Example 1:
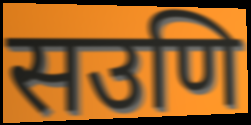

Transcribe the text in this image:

सउणि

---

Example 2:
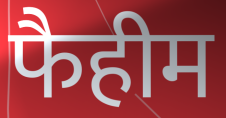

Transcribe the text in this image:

फैहीम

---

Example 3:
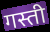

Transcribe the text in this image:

गस्ती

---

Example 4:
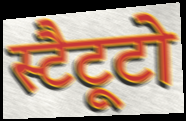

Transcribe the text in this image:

स्टैटूटो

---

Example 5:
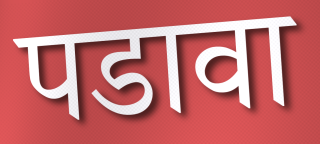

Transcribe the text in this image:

पडावा